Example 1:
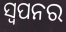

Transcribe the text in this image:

ସ୍ଵପନର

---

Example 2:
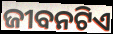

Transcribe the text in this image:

ଜୀବନଟିଏ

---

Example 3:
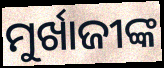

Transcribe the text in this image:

ମୁର୍ଖାଜୀଙ୍କ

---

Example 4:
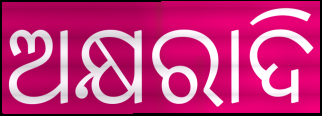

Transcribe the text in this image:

ଅକ୍ଷରାଦି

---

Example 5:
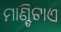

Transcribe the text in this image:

ମାଣ୍ଡିଟାଏ